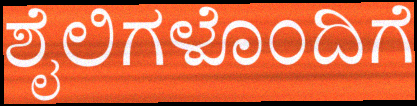
ಶೈಲಿಗಳೊಂದಿಗೆ